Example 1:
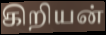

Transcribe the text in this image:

கிறியன்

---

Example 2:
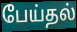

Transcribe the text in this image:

பேய்தல்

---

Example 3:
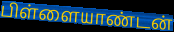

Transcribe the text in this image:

பிள்ளையாண்டன்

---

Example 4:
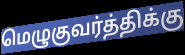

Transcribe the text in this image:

மெழுகுவர்த்திக்கு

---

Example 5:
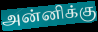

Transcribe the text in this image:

அன்னிக்கு